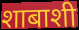
शाबाशी